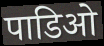
पाडिओ